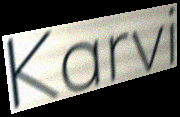
Karvi